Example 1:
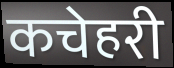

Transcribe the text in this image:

कचेहरी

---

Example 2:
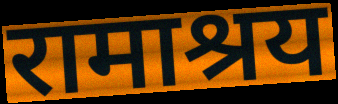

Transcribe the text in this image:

रामाश्रय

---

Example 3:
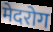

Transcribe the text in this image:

मेदरोग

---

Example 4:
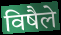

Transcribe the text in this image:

विषैले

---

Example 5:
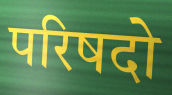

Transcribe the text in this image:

परिषदो